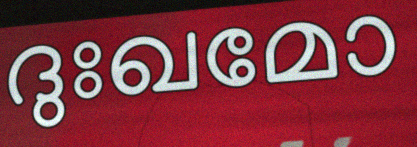
ദുഃഖമോ